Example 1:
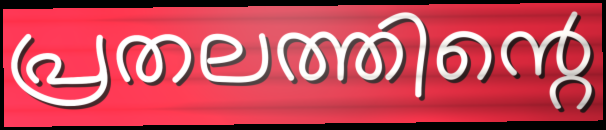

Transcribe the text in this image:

പ്രതലത്തിന്റെ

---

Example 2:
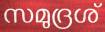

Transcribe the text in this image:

സമുദ്രശ്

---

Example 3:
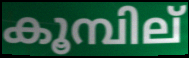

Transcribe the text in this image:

കൂമ്പില്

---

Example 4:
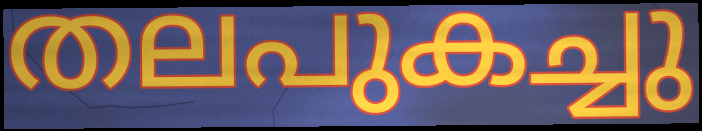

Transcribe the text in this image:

തലപുകച്ചു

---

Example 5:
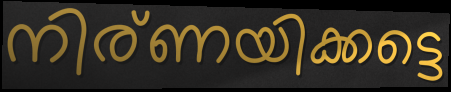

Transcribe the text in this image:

നിര്ണയിക്കട്ടെ